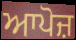
ਆਪੋਜ਼